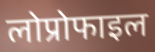
लोप्रोफाइल